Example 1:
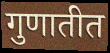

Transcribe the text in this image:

गुणातीत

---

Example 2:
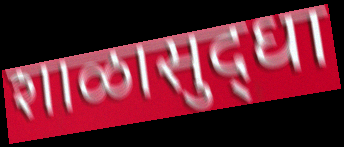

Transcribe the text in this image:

शाळासुद्धा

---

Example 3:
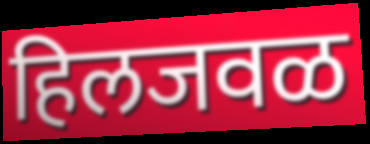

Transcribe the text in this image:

हिलजवळ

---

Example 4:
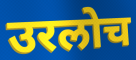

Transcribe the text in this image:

उरलोच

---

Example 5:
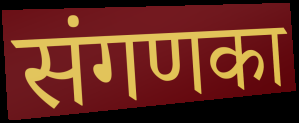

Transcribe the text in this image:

संगणका